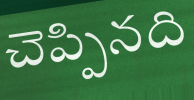
చెప్పినది